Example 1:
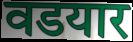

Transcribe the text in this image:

वडयार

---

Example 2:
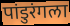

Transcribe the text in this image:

पांडुरंगला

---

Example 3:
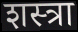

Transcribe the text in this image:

शस्त्रा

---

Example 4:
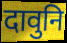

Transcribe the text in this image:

दावुनि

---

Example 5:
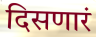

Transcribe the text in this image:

दिसणारं